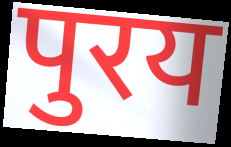
पुरय